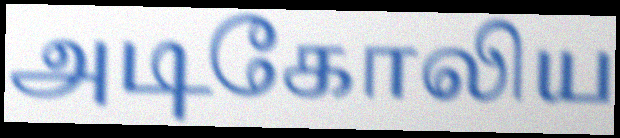
அடிகோலிய